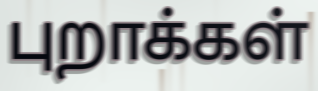
புறாக்கள்